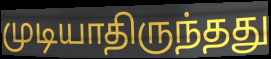
முடியாதிருந்தது